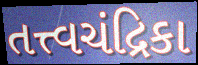
તત્ત્વચંદ્રિકા